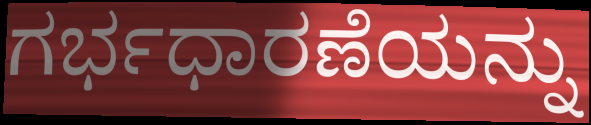
ಗರ್ಭಧಾರಣೆಯನ್ನು